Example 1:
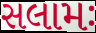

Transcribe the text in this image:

સલામઃ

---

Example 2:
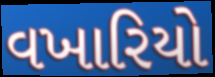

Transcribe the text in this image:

વખારિયો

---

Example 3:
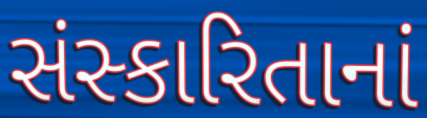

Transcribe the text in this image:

સંસ્કારિતાનાં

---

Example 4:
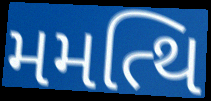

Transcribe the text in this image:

મમત્થિ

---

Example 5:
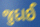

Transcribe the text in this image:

જુદાઈ